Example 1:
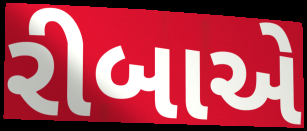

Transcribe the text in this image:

રીબાએ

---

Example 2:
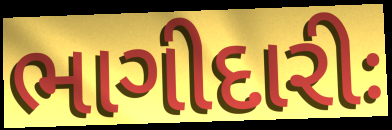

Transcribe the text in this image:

ભાગીદારીઃ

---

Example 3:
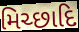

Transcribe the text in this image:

મિચ્છાદિ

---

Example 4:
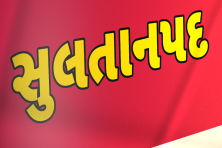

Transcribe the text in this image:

સુલતાનપદ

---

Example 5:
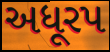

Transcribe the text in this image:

અધૂરપ